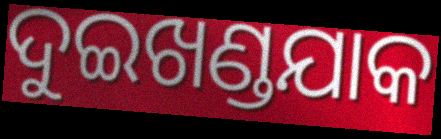
ଦୁଇଖଣ୍ଡଯାକ